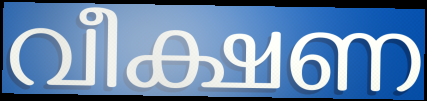
വീക്ഷണ